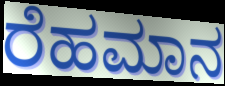
ರೆಹಮಾನ